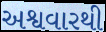
અશ્વવારથી